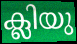
ക്ലിയു